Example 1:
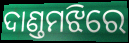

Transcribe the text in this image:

ଦାଣ୍ଡମଝିରେ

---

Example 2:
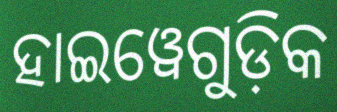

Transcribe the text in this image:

ହାଇୱେଗୁଡ଼ିକ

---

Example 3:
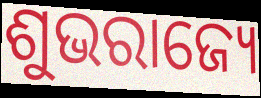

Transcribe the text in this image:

ଶୁଭରାଜ୍ୟେ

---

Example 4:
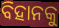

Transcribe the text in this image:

ବିହାନକୁ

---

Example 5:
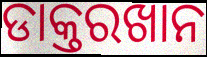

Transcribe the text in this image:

ଡାକ୍ତରଖାନ